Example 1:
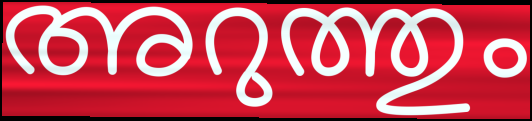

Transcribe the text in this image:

അറുത്തും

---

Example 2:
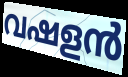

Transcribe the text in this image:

വഷളൻ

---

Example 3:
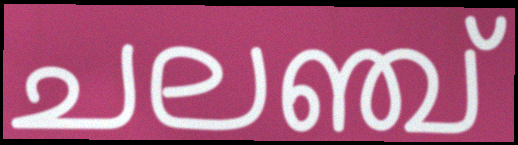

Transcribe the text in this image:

ചലഞ്ച്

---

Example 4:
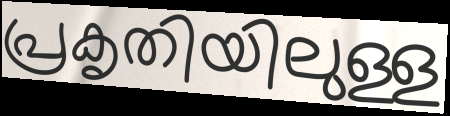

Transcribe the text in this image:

പ്രകൃതിയിലുള്ള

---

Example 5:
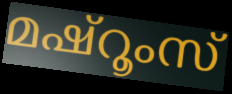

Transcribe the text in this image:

മഷ്റൂംസ്